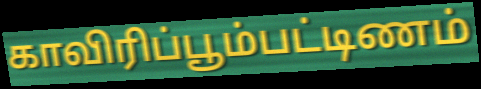
காவிரிப்பூம்பட்டிணம்